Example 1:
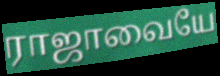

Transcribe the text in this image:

ராஜாவையே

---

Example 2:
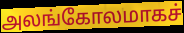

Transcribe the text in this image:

அலங்கோலமாகச்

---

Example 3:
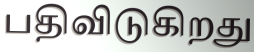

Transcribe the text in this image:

பதிவிடுகிறது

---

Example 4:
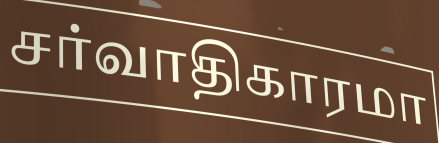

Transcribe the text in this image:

சர்வாதிகாரமா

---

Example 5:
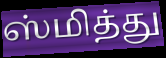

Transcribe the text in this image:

ஸ்மித்து